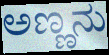
ಅಣ್ಣನು